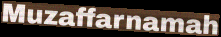
Muzaffarnamah